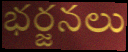
భర్జనలు